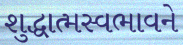
શુદ્ધાત્મસ્વભાવને